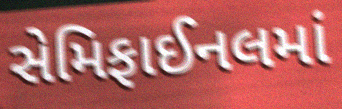
સેમિફાઈનલમાં